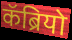
कॅब्रियो